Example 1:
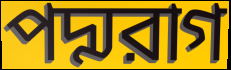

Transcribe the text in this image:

পদ্মরাগ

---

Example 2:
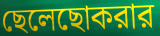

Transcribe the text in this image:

ছেলেছোকরার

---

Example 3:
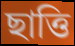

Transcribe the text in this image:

ছাত্তি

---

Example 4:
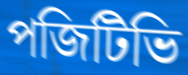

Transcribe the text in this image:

পজিটিভি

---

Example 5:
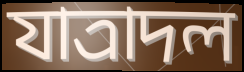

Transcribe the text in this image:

যাত্রাদল